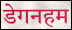
डेगनहम